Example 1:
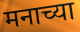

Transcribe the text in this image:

मनाच्या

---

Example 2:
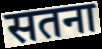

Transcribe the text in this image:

सतना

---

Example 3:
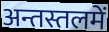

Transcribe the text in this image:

अन्तस्तलमें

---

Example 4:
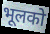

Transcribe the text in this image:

भूलको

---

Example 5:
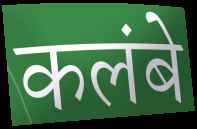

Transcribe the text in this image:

कलंबे